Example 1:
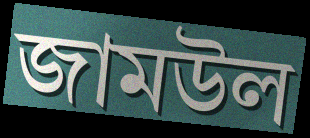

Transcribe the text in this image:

জামউল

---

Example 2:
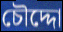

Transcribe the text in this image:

চৌদ্দো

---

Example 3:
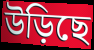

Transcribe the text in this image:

উড়িছে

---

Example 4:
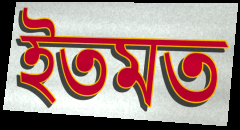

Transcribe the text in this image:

ইতমত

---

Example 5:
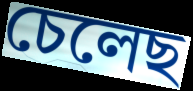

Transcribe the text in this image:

চেলেছ